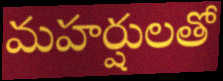
మహర్షులతో